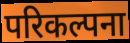
परिकल्पना